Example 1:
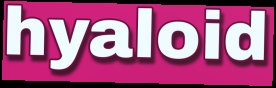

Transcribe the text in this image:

hyaloid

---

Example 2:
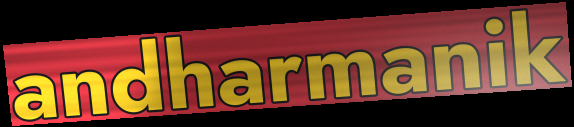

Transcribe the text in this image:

andharmanik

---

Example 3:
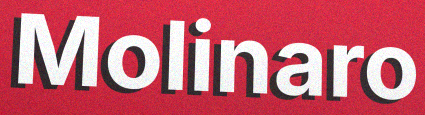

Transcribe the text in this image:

Molinaro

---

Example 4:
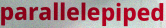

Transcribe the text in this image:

parallelepiped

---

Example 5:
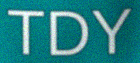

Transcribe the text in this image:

TDY